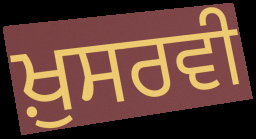
ਖ਼ੁਸਰਵੀ